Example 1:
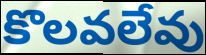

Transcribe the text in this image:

కొలవలేవు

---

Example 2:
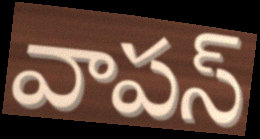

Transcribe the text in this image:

వాపస్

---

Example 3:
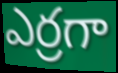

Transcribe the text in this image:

ఎర్రగా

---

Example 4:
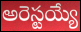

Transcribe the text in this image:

అరెస్టయ్యే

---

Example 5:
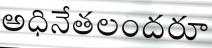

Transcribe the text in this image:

అధినేతలందరూ